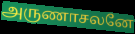
அருணாசலனே